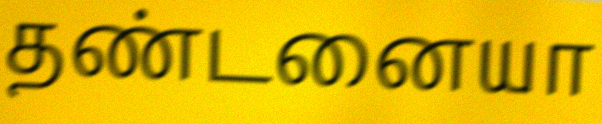
தண்டனையா